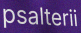
psalterii